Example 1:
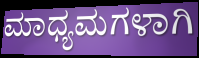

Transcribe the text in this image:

ಮಾಧ್ಯಮಗಳಾಗಿ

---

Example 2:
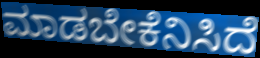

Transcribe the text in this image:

ಮಾಡಬೇಕೆನಿಸಿದೆ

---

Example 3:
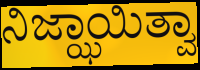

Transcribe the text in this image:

ನಿಜ್ಝಾಯಿತ್ವಾ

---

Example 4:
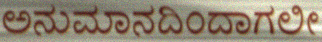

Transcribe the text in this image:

ಅನುಮಾನದಿಂದಾಗಲೀ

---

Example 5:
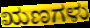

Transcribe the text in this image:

ಋಣಗಳು